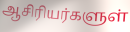
ஆசிரியர்களுள்